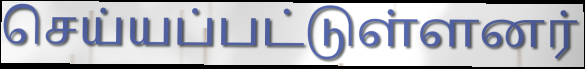
செய்யப்பட்டுள்ளனர்